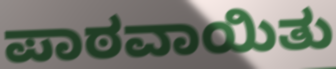
ಪಾಠವಾಯಿತು